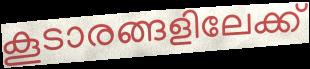
കൂടാരങ്ങളിലേക്ക്